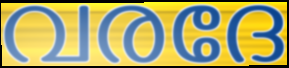
വരദേ